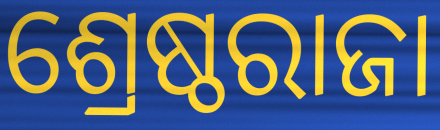
ଶ୍ରେଷ୍ଠରାଜା